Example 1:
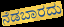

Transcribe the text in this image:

ನೆಡಬಾರದು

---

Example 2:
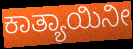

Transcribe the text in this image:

ಕಾತ್ಯಾಯಿನೀ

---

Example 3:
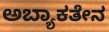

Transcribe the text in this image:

ಅಬ್ಯಾಕತೇನ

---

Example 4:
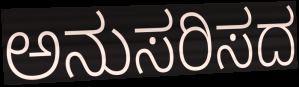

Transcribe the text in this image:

ಅನುಸರಿಸದ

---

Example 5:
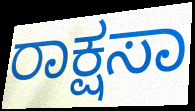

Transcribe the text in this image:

ರಾಕ್ಷಸಾ